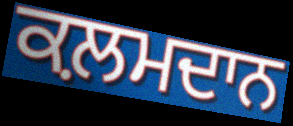
ਕ਼ਲਮਦਾਨ